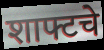
शाफ्टचे